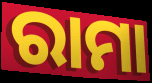
ରାମା